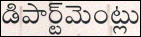
డిపార్ట్‌మెంట్లు